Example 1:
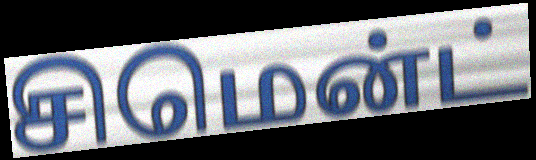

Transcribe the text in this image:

சிமென்ட்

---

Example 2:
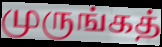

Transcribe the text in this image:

முருங்கத்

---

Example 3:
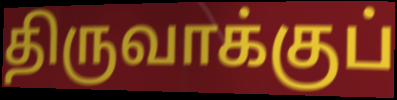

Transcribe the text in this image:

திருவாக்குப்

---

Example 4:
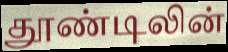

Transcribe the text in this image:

தூண்டிலின்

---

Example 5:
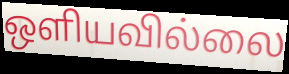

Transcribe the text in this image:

ஒளியவில்லை